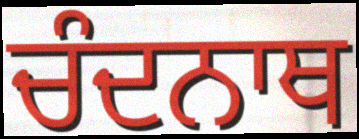
ਚੰਦਨਾਥ